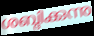
ശബ്ദിക്കുന്നു